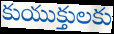
కుయుక్తులకు